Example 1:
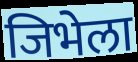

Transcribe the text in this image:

जिभेला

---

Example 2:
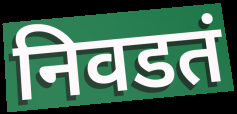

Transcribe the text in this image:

निवडतं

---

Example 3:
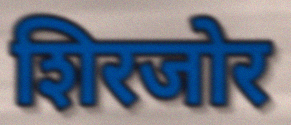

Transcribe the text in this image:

शिरजोर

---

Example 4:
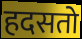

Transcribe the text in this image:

हदसतो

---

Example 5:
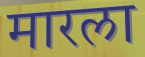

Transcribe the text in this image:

मारला